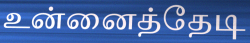
உன்னைத்தேடி